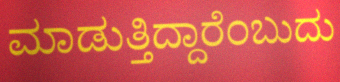
ಮಾಡುತ್ತಿದ್ದಾರೆಂಬುದು